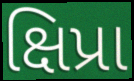
ક્ષિપ્રા